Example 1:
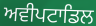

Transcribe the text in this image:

ਅਵੀਪਟਾਡਿਲ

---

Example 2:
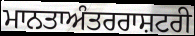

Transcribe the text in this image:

ਮਾਨਤਾਅੰਤਰਰਾਸ਼ਟਰੀ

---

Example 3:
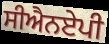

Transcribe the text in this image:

ਸੀਐਨਏਪੀ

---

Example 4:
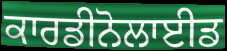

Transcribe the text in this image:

ਕਾਰਡੀਨੋਲਾਈਡ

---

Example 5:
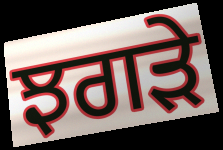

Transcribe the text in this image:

ਝਗਡ਼ੇ